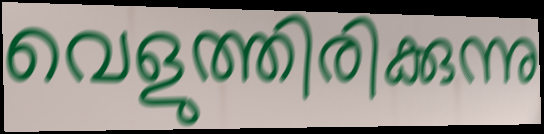
വെളുത്തിരിക്കുന്നു